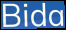
Bida